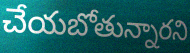
చేయబోతున్నారని